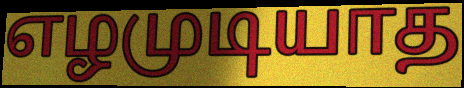
எழமுடியாத